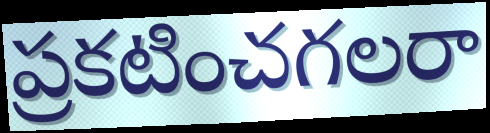
ప్రకటించగలరా